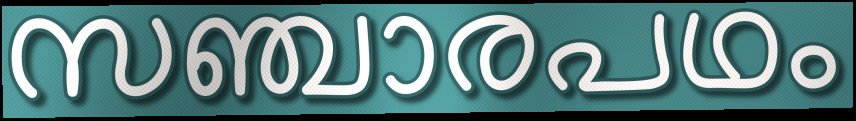
സഞ്ചാരപഥം